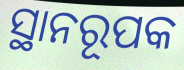
ସ୍ଥାନରୂପକ